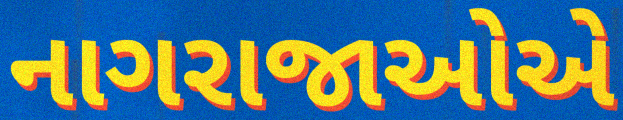
નાગરાજાઓએ